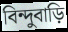
বিন্দুবাড়ি